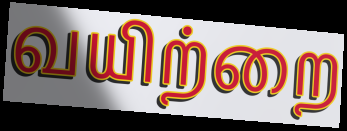
வயிற்றை